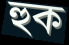
হুক